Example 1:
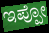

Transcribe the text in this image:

ಇಪ್ಪೋ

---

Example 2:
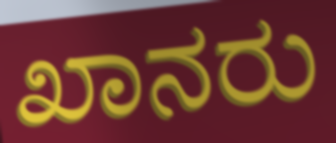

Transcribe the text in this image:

ಖಾನರು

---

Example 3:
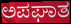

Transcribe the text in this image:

ಅಪಘಾತ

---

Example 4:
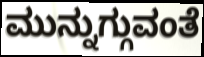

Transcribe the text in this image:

ಮುನ್ನುಗ್ಗುವಂತೆ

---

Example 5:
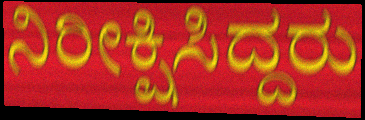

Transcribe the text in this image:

ನಿರೀಕ್ಷಿಸಿದ್ದರು